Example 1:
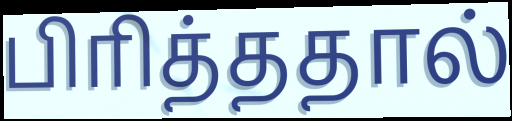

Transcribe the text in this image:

பிரித்ததால்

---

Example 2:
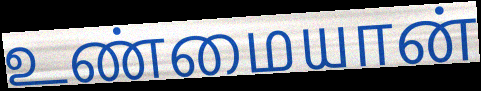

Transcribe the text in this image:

உண்மையான்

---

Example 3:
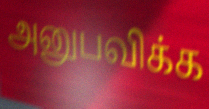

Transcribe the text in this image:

அனுபவிக்க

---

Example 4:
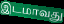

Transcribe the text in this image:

இடமாவது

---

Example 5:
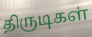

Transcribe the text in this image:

திருடிகள்